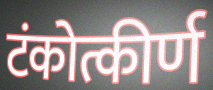
टंकोत्कीर्ण